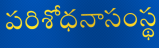
పరిశోధనాసంస్థ